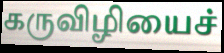
கருவிழியைச்